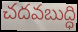
చదవబుద్ధి